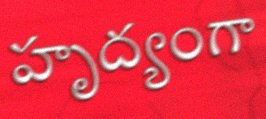
హృద్యంగా